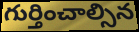
గుర్తించాల్సిన